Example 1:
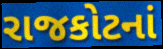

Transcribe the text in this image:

રાજકોટનાં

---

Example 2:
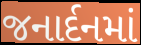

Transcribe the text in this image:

જનાર્દનમાં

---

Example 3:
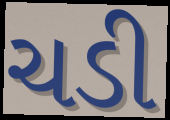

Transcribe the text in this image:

ચડી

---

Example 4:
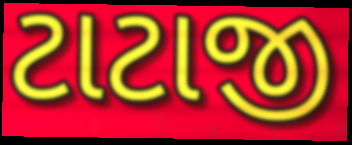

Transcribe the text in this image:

ટાટાજી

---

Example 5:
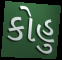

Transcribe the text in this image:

કોહુ